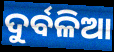
ଦୁର୍ବଳିଆ